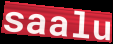
saalu